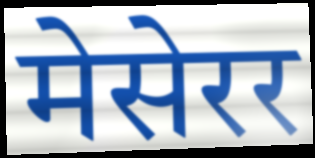
मेसेरर